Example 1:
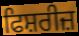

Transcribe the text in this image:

ਫਿਸ਼ਰੀਜ਼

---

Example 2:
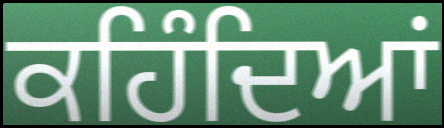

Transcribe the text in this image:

ਕਹਿੰਦਿਆਂ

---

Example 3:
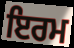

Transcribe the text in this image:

ਇਰਮ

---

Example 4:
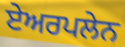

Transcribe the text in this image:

ਏਅਰਪਲੇਨ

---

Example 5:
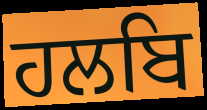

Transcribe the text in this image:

ਹਲਬਿ